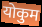
योकुम